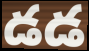
డడ